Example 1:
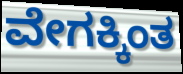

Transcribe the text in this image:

ವೇಗಕ್ಕಿಂತ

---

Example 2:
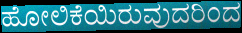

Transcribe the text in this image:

ಹೋಲಿಕೆಯಿರುವುದರಿಂದ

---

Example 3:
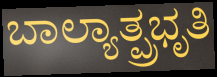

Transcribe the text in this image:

ಬಾಲ್ಯಾತ್ಪ್ರಭೃತಿ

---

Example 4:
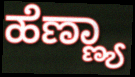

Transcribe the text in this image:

ಹೆಣ್ಣ್ಯಾ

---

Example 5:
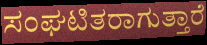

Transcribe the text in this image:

ಸಂಘಟಿತರಾಗುತ್ತಾರೆ